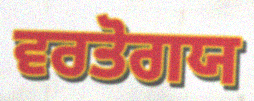
ਵਰਤੋਗਯ